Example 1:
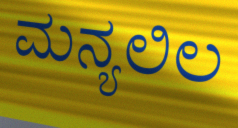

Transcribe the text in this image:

ಮನ್ಯಲಿಲ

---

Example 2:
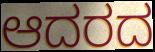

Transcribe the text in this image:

ಆದರದ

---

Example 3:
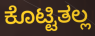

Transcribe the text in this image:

ಕೊಟ್ಟಿತಲ್ಲ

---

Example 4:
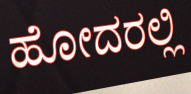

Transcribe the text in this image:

ಹೋದರಲ್ಲಿ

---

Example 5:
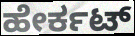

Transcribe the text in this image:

ಹೇರ್ಕಟ್